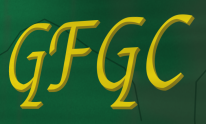
GFGC